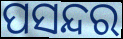
ପସନ୍ଦର